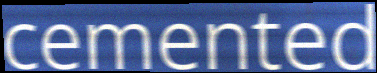
cemented